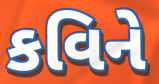
કવિને